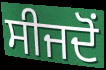
ਸੀਜਦੋਂ